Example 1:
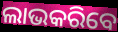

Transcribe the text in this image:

ଲାଭକରିବେ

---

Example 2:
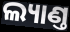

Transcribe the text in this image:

ଲ୍ୟାଣ୍ତ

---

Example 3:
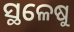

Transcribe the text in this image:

ସ୍ଥଳେଷୁ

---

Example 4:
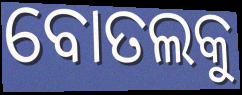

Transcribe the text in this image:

ବୋତଲକୁ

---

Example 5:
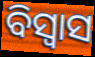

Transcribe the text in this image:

ବିସ୍ବାସ